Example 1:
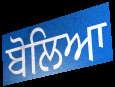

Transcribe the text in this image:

ਬੋਲਿਆ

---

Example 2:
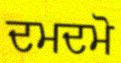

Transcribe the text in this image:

ਦਮਦਮੋ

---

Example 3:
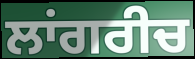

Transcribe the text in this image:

ਲਾਂਗਰੀਚ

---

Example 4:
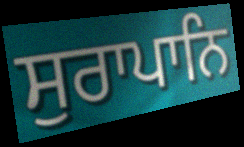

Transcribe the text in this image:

ਸੁਰਾਪਾਨਿ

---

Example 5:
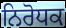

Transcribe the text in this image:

ਨਿਰੋਧਕ